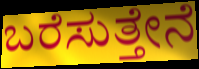
ಬರೆಸುತ್ತೇನೆ